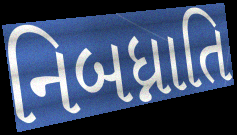
નિબધ્નાતિ